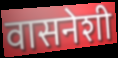
वासनेशी